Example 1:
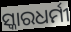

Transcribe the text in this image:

ସ୍କାରଧର୍ମୀ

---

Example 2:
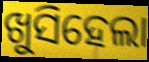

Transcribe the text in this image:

ଖୁସିହେଲା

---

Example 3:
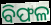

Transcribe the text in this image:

ବିଫଳ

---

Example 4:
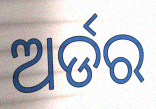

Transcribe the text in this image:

ଅର୍ଡର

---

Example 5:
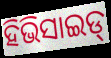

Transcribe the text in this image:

ହିଭିସାଇଡ୍